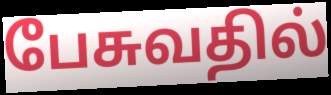
பேசுவதில்